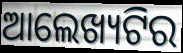
ଆଲେଖ୍ୟଟିର